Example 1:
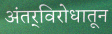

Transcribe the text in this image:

अंतर्विरोधातून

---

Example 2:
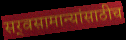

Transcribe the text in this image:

सर्वसामान्यांसाठीच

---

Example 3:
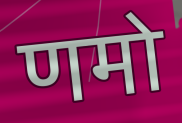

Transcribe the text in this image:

णमो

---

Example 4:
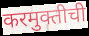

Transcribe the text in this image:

करमुक्तीची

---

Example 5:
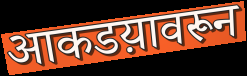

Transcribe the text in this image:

आकडय़ावरून